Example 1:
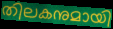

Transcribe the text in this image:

തിലകനുമായി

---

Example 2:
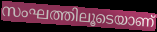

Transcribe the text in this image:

സംഘത്തിലൂടെയാണ്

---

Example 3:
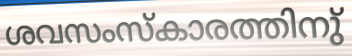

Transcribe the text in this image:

ശവസംസ്കാരത്തിനു്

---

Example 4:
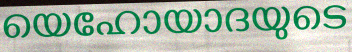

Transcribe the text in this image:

യെഹോയാദയുടെ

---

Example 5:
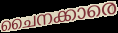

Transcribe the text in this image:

ചൈനക്കാരെ